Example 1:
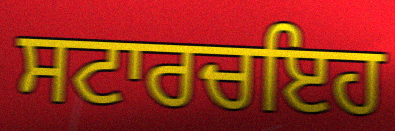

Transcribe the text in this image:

ਸਟਾਰਚਇਹ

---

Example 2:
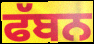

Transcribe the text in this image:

ਫੱਬਨ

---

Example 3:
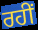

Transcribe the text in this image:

ਰਹੀਂ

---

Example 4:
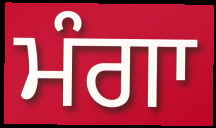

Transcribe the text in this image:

ਮੰਗਾ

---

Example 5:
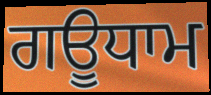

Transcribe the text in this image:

ਗਊਧਾਮ